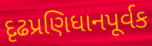
દૃઢપ્રણિધાનપૂર્વક